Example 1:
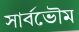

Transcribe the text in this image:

সার্বভৌম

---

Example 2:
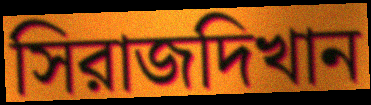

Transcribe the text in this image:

সিরাজদিখান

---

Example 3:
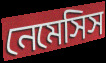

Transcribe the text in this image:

নেমেসিস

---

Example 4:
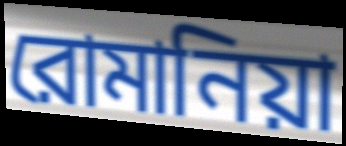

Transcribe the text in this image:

রোমানিয়া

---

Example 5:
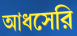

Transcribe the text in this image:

আধসেরি